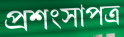
প্রশংসাপত্র